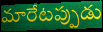
మారేటప్పుడు